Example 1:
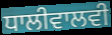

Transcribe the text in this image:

ਧਾਲੀਵਾਲਵੀ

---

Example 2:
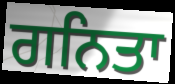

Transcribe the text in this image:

ਗਨਿਤਾ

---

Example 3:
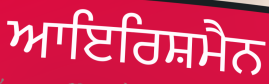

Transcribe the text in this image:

ਆਇਰਿਸ਼ਮੈਨ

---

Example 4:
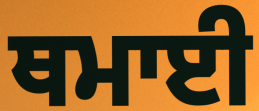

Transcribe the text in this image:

ਥਮਾਈ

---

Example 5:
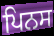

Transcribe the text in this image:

ਪਿਨਸ